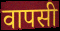
वापसी